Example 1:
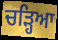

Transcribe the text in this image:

ਚੜ੍ਹਿਆ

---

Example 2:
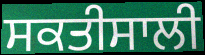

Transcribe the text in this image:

ਸਕਤੀਸਾਲੀ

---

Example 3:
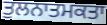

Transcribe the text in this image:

ਤੁਲਨਾਤਮਕਤਾ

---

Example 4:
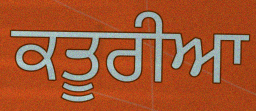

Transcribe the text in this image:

ਕਤੂਰੀਆ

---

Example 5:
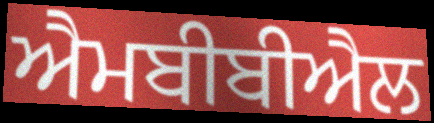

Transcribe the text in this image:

ਐਮਬੀਬੀਐਲ